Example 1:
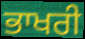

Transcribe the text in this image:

ਭਾਖਰੀ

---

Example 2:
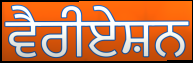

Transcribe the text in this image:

ਵੈਰੀਏਸ਼ਨ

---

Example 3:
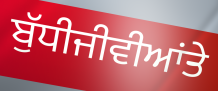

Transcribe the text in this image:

ਬੁੱਧੀਜੀਵੀਆਂਤੇ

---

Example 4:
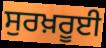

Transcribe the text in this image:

ਸੁਰਖ਼ਰੂਈ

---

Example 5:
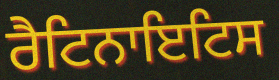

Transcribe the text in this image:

ਰੈਟਿਨਾਇਟਿਸ